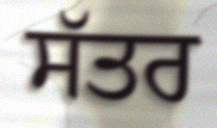
ਸੱਤਰ